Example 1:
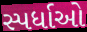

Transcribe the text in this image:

સ્પર્ધાઓ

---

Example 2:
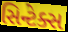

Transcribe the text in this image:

સિન્ટેક્સ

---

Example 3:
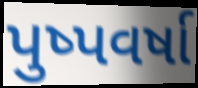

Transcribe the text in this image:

પુષ્પવર્ષા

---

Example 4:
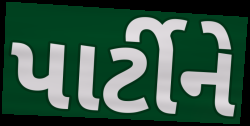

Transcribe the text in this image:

પાર્ટીને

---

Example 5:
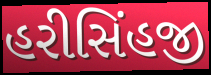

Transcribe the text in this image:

હરીસિંહજી